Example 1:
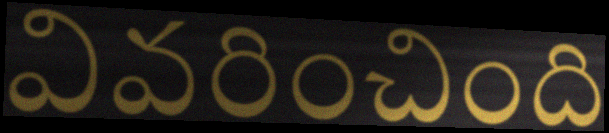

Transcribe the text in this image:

వివరించింది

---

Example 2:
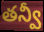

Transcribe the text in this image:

తన్వీ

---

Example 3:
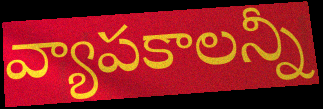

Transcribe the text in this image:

వ్యాపకాలన్నీ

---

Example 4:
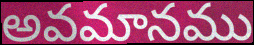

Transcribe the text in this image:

అవమానము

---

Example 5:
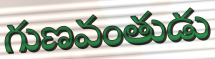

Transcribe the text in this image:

గుణవంతుడు